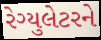
રેગ્યુલેટરને